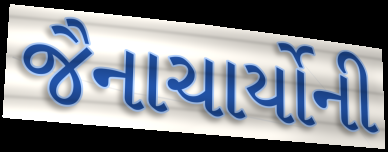
જૈનાચાર્યોની